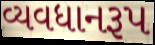
વ્યવધાનરૂપ